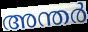
അന്തർ